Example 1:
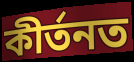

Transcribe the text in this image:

কীৰ্তনত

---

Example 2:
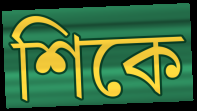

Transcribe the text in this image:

শিকে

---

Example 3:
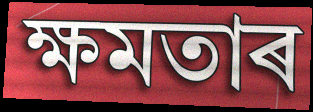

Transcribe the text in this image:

ক্ষমতাৰ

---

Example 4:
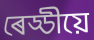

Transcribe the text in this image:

ৰেড্ডীয়ে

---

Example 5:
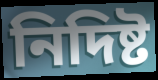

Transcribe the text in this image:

নিদিষ্ট